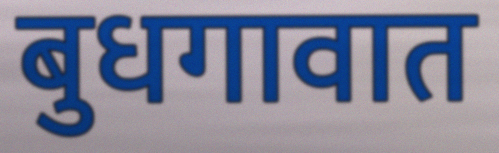
बुधगावात